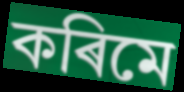
কৰিমে